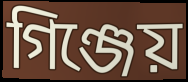
গিঞ্জেয়